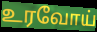
உரவோய்